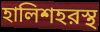
হালিশহরস্থ